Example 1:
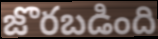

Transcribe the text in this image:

జొరబడింది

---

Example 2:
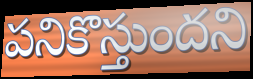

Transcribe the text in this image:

పనికొస్తుందని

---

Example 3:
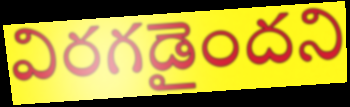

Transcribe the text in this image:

విరగడైందని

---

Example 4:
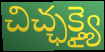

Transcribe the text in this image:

చిచ్ఛక్త్యై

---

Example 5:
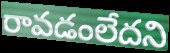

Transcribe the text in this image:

రావడంలేదని